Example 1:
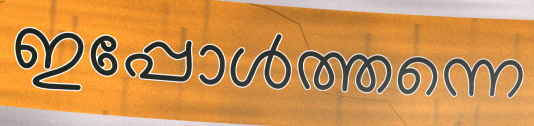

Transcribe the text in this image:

ഇപ്പോൾത്തന്നെ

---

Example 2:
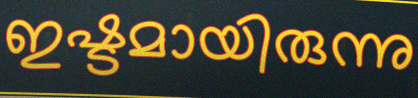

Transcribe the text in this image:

ഇഷ്ടമായിരുന്നു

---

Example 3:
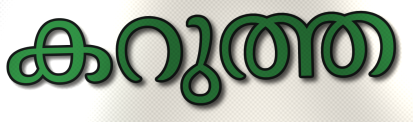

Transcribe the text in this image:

കറുത്ത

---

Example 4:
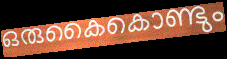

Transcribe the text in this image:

ഒരുകൈകൊണ്ടും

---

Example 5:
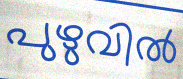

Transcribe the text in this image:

പുഴുവിൽ